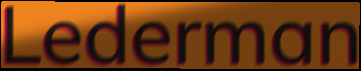
Lederman